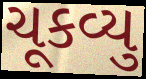
ચૂકવ્યુ